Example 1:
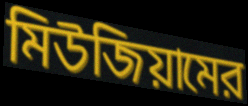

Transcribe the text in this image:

মিউজিয়ামের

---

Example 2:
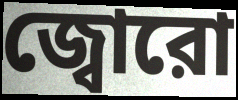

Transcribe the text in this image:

জ্বোরো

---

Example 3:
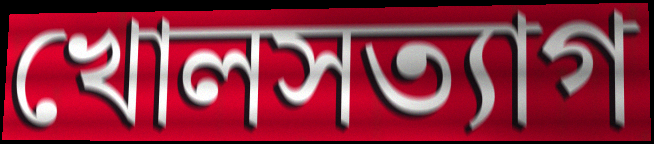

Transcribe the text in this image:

খোলসত্যাগ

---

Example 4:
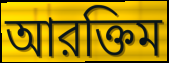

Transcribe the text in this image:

আরক্তিম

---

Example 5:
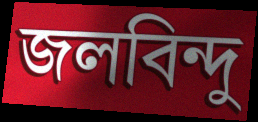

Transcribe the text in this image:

জলবিন্দু